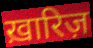
ख़ारिज़